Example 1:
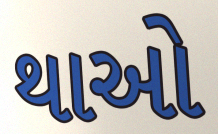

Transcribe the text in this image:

થાઓ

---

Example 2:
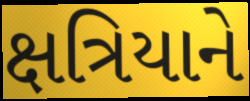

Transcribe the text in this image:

ક્ષત્રિયાને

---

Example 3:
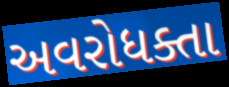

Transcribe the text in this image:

અવરોધક્તા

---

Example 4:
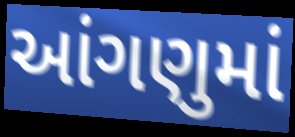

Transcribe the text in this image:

આંગણુમાં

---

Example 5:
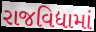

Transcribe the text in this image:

રાજવિદ્યામાં